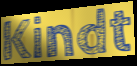
Kindt